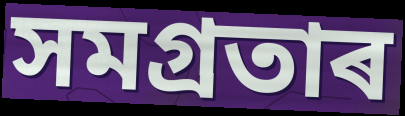
সমগ্ৰতাৰ